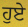
ਹੁਏ